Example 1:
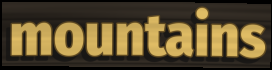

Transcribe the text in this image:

mountains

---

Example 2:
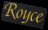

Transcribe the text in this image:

Royce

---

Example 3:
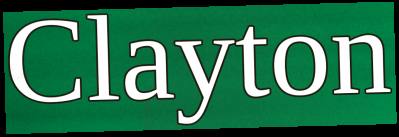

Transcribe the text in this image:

Clayton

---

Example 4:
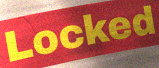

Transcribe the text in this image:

Locked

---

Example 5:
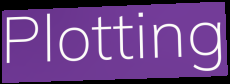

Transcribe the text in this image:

Plotting